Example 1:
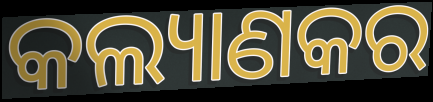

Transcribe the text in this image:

କଲ୍ୟାଣକର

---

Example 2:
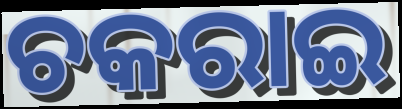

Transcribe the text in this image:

ଚକରାଇ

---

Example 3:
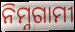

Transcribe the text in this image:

ନିମ୍ନଗାମୀ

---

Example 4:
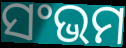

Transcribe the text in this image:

ସଂଭମ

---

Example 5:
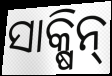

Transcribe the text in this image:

ସାକ୍ଷିନ୍